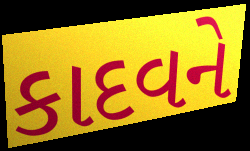
કાદવને